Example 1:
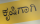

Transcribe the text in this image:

ಕೃಷಿಗಾಗಿ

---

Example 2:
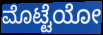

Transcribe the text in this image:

ಮೊಟ್ಟೆಯೋ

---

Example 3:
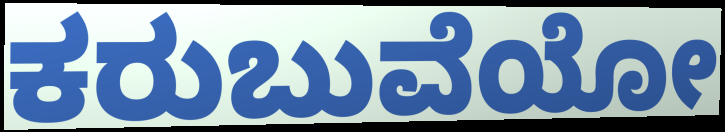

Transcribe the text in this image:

ಕರುಬುವೆಯೋ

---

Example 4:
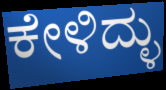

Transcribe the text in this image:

ಕೇಳಿದ್ಳು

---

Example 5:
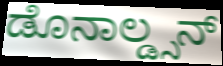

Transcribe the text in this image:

ಡೊನಾಲ್ಡ್ಸನ್